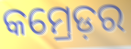
କମ୍ରେଡ଼ର